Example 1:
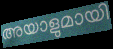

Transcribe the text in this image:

അയാളുമായി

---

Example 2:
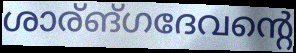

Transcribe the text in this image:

ശാര്ങ്ഗദേവന്റെ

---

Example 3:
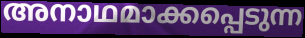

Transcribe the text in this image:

അനാഥമാക്കപ്പെടുന്ന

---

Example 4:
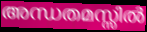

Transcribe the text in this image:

അന്ധതമസ്സിൽ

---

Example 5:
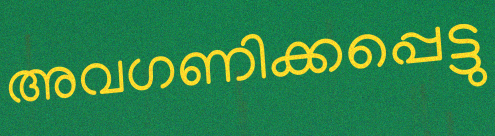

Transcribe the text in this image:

അവഗണിക്കപ്പെട്ടു